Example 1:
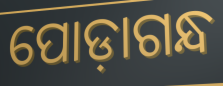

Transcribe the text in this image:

ପୋଡ଼ାଗନ୍ଧ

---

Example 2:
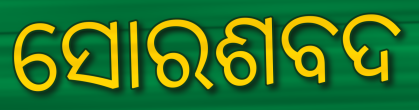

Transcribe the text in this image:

ସୋରଶବଦ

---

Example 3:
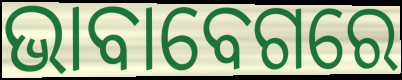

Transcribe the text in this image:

ଭାବାବେଗରେ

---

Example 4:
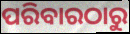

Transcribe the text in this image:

ପରିବାରଠାରୁ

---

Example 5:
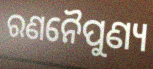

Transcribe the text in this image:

ରଣନୈପୁଣ୍ୟ